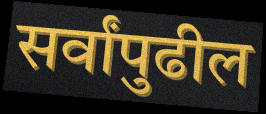
सर्वांपुढील